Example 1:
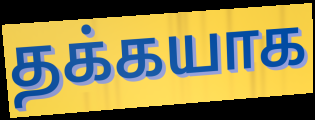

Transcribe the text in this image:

தக்கயாக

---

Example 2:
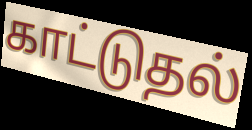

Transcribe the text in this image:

காட்டுதல்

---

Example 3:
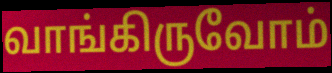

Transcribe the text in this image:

வாங்கிருவோம்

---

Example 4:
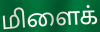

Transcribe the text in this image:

மிளைக்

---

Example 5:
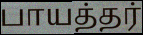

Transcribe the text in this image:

பாயத்தர்